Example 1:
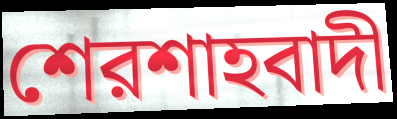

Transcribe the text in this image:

শেরশাহবাদী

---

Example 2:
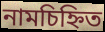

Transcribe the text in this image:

নামচিহ্নিত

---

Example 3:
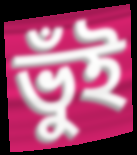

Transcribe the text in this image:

ভুঁই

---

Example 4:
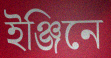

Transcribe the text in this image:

ইঞ্জিনে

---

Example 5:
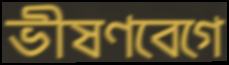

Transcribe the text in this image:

ভীষণবেগে